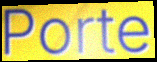
Porte